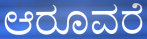
ಆರೂವರೆ